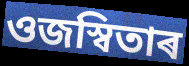
ওজস্বিতাৰ